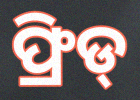
ଫ୍ରିଡ୍